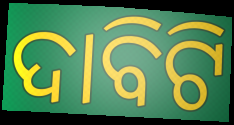
ଦାବିଟି